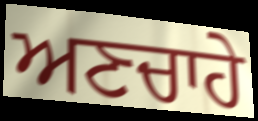
ਅਣਚਾਹੇ